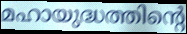
മഹായുദ്ധത്തിന്റെ